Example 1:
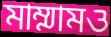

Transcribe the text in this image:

মাম্মামও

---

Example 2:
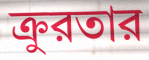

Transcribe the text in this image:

ক্রুরতার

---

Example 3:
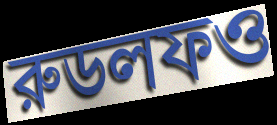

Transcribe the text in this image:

রুডলফও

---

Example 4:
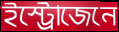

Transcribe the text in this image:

ইস্ট্রোজেনে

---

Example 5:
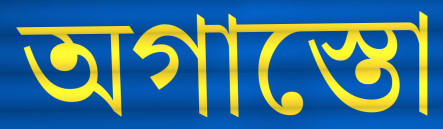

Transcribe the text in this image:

অগাস্তো